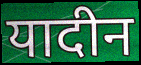
यादीन